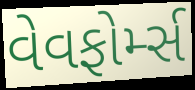
વેવફોર્મ્સ